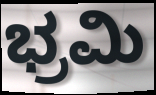
ಭ್ರಮಿ